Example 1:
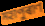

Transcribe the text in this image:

মহাপুৰাণ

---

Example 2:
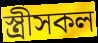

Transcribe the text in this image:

স্ত্ৰীসকল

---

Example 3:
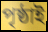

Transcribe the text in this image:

পৃষ্ঠাই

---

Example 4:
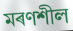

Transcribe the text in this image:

মৰণশীল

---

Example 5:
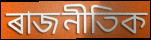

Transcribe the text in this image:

ৰাজনীতিক